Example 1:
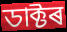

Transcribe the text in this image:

ডাক্টৰ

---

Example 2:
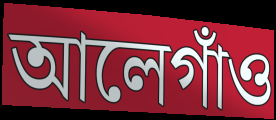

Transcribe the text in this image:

আলেগাঁও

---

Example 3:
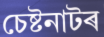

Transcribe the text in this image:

চেষ্টনাটৰ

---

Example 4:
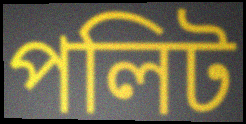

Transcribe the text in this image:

পলিট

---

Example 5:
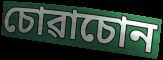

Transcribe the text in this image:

চোৱাচোন